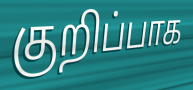
குறிப்பாக